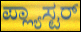
ಪ್ಲ್ಯಾಸ್ಟರ್